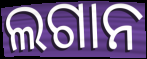
ଲଗାନ